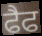
ਫੈਫ